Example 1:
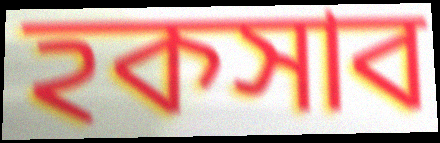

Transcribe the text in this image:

হকসাব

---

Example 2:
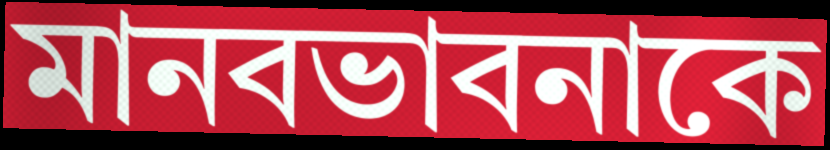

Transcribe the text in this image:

মানবভাবনাকে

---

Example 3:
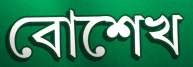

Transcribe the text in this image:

বোশেখ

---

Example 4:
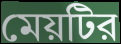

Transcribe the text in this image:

মেয়টির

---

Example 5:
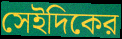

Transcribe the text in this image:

সেইদিকের